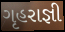
ગૃહરાજ્ઞી